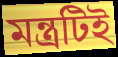
মন্ত্রটিই